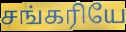
சங்கரியே